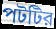
পটটির